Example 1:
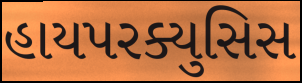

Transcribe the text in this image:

હાયપરક્યુસિસ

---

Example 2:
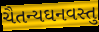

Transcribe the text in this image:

ચૈતન્યઘનવસ્તુ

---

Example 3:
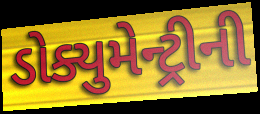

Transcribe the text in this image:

ડોક્યુમેન્ટ્રીની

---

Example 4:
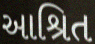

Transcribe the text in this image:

આશ્રિત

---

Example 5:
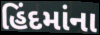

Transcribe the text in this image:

હિંદમાંના